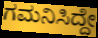
ಗಮನಿಸಿದ್ದೇ